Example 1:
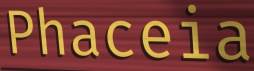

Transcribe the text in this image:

Phaceia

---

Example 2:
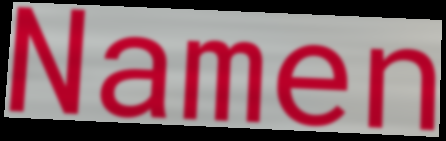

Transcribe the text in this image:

Namen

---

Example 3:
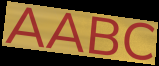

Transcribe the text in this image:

AABC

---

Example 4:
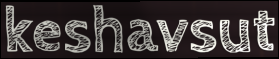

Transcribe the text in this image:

keshavsut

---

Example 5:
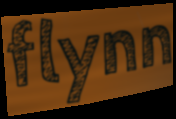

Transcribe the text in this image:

flynn